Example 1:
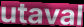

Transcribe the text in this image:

utaval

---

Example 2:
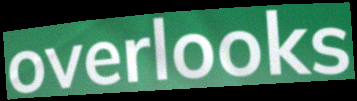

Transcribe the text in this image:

overlooks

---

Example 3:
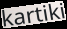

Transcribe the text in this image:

kartiki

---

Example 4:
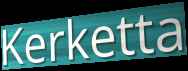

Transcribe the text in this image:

Kerketta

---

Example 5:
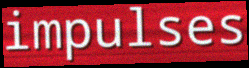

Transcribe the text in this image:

impulses